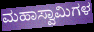
ಮಹಾಸ್ವಾಮಿಗಳ